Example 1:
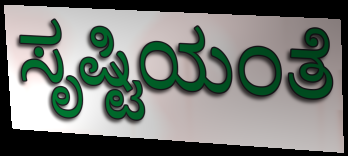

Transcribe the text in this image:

ಸೃಷ್ಟಿಯಂತೆ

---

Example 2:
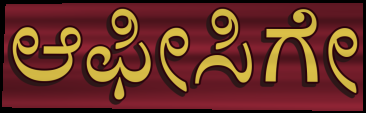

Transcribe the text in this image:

ಆಫೀಸಿಗೇ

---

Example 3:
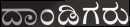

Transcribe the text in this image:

ದಾಂಡಿಗರು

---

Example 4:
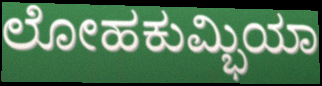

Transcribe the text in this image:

ಲೋಹಕುಮ್ಭಿಯಾ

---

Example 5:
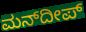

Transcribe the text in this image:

ಮನ್‍ದೀಪ್